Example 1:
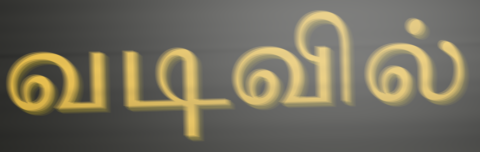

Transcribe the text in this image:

வடிவில்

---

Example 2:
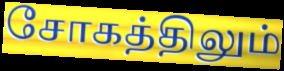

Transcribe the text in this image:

சோகத்திலும்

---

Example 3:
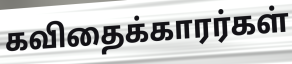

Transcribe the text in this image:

கவிதைக்காரர்கள்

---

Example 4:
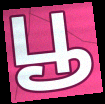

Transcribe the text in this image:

பூ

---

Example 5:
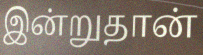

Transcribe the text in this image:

இன்றுதான்